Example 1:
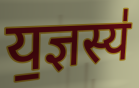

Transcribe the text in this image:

य॒ज्ञस्य॑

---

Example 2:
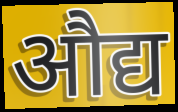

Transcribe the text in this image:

औद्य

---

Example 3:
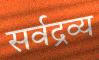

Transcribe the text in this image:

सर्वद्रव्य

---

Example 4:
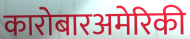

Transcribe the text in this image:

कारोबारअमेरिकी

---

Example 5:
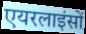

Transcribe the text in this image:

एयरलाइंसों